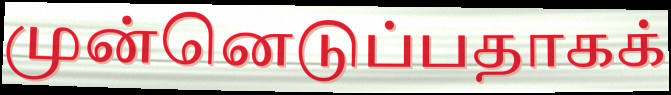
முன்னெடுப்பதாகக்